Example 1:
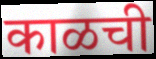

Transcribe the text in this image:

काळची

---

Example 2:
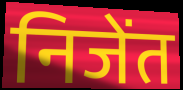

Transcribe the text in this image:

निजेंत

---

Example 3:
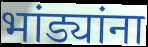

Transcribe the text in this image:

भांड्यांना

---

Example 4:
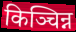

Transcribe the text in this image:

किञ्चिन्न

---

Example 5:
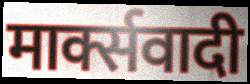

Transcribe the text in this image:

मार्क्सवादी